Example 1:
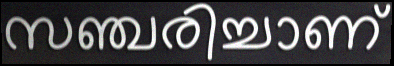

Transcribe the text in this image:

സഞ്ചരിച്ചാണ്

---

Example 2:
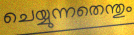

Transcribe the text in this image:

ചെയ്യുന്നതെന്തും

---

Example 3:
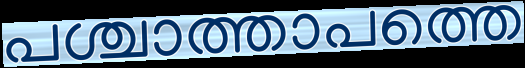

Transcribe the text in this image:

പശ്ചാത്താപത്തെ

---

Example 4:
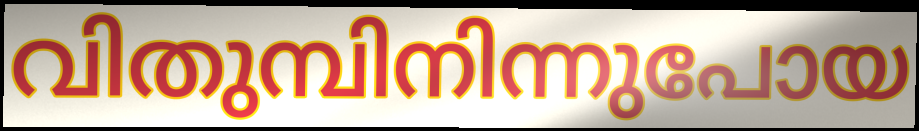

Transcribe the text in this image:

വിതുമ്പിനിന്നുപോയ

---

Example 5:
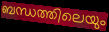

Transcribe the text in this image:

ബന്ധത്തിലെയും